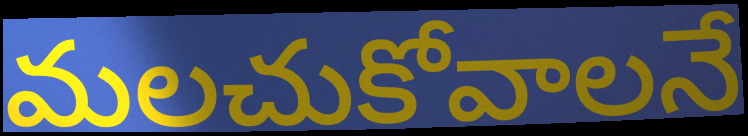
మలచుకోవాలనే